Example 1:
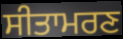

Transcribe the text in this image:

ਸੀਤਾਮਰਣ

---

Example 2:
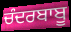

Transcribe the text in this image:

ਚੰਦਰਬਾਬੂ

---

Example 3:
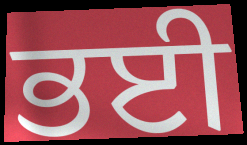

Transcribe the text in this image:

ਭਈ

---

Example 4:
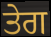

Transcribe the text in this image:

ਤੇਗ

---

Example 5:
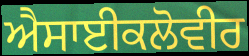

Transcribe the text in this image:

ਐਸਾਈਕਲੋਵੀਰ